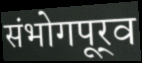
संभोगपूर्व